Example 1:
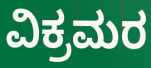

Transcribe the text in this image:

ವಿಕ್ರಮರ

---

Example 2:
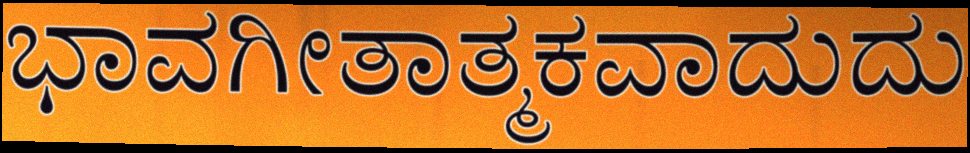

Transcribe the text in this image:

ಭಾವಗೀತಾತ್ಮಕವಾದುದು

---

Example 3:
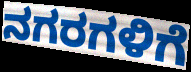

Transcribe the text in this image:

ನಗರಗಳಿಗೆ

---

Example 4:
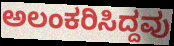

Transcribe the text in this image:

ಅಲಂಕರಿಸಿದ್ದವು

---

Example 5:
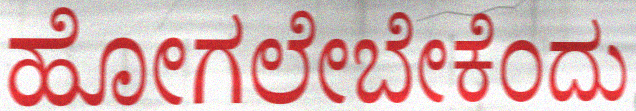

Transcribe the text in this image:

ಹೋಗಲೇಬೇಕೆಂದು